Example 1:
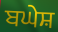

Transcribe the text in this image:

ਬਘੇਸ਼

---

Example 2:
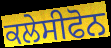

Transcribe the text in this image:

ਕਲੇਸੀਫੋਨ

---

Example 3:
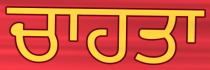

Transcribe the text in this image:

ਚਾਹਤਾ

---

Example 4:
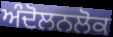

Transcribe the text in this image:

ਅੰਦੋਲਨਲੋਕ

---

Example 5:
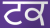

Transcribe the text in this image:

ਟਕ